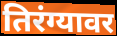
तिरंग्यावर